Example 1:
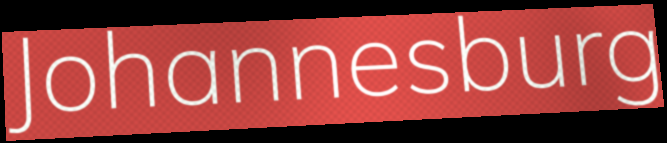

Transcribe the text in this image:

Johannesburg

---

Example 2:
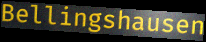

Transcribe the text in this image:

Bellingshausen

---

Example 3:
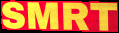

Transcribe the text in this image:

SMRT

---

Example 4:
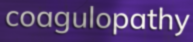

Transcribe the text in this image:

coagulopathy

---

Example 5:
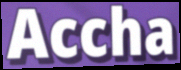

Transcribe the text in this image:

Accha